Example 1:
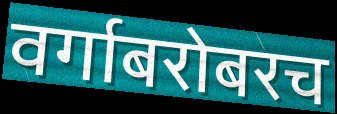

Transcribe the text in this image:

वर्गाबरोबरच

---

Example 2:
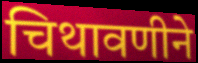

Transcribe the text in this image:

चिथावणीने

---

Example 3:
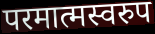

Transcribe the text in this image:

परमात्मस्वरुप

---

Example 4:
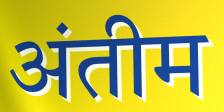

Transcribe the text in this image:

अंतीम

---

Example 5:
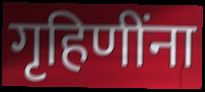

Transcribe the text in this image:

गृहिणींना